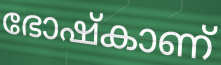
ഭോഷ്കാണ്